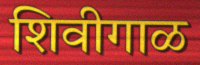
शिवीगाळ